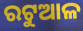
ରଟୁଆଳ